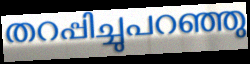
തറപ്പിച്ചുപറഞ്ഞു